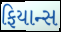
ફિયાન્સ